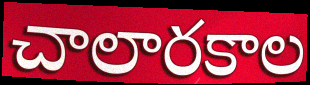
చాలారకాల